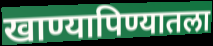
खाण्यापिण्यातला